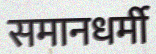
समानधर्मी